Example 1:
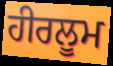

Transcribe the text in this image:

ਹੀਰਲੂਮ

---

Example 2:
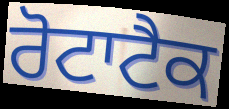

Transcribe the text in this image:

ਰੋਟਾਟੈਕ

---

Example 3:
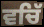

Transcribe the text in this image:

ਵਚਿੱ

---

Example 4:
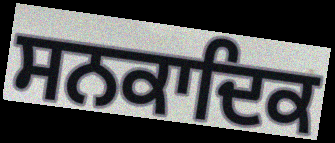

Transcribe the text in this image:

ਸਨਕਾਦਿਕ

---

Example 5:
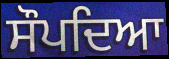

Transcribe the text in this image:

ਸੌਪਦਿਆ